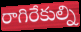
రాగిరేకుల్ని